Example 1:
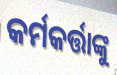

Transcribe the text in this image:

କର୍ମକର୍ତ୍ତାଙ୍କୁ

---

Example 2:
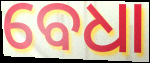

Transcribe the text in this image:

ବେଧା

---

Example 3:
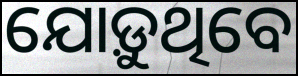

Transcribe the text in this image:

ଯୋଡ଼ୁଥିବେ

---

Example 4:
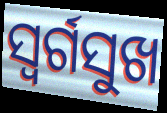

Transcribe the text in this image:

ସ୍ୱର୍ଗସୁଖ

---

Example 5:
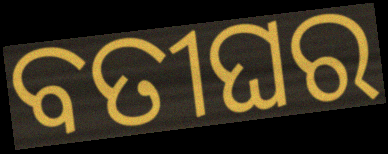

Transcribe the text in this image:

ବତୀଘର